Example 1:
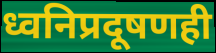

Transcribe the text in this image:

ध्वनिप्रदूषणही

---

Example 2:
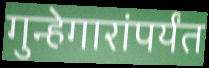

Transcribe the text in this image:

गुन्हेगारांपर्यंत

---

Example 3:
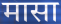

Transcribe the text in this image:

मासा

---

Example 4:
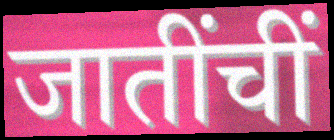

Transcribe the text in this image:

जातींचीं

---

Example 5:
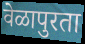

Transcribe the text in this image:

वेळापुरता